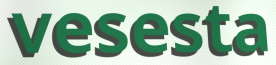
vesesta